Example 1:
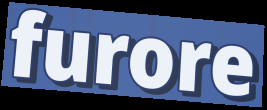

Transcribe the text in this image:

furore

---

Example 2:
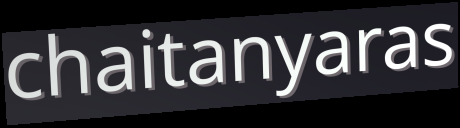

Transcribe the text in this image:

chaitanyaras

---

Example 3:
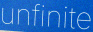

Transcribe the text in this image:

unfinite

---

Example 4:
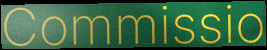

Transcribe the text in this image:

Commissio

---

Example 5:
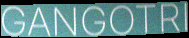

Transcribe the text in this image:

GANGOTRI